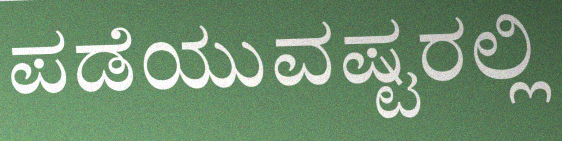
ಪಡೆಯುವಷ್ಟರಲ್ಲಿ